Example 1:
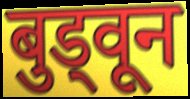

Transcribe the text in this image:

बुड्वून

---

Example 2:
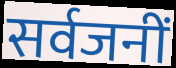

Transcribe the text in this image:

सर्वजनीं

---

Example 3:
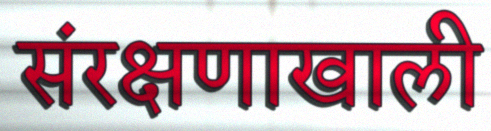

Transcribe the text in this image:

संरक्षणाखाली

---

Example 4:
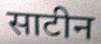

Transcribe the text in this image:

साटीन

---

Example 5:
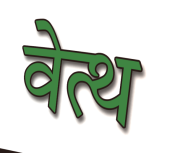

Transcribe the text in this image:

वेत्थ